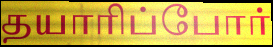
தயாரிப்போர்